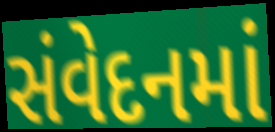
સંવેદનમાં